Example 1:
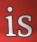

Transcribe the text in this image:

is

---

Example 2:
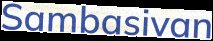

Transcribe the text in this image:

Sambasivan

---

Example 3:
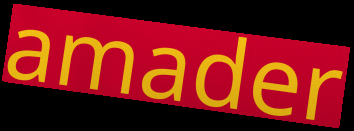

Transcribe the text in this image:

amader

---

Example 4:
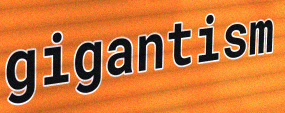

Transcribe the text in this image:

gigantism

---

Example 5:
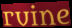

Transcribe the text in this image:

ruine